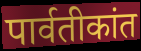
पार्वतीकांत